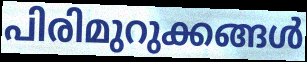
പിരിമുറുക്കങ്ങൾ